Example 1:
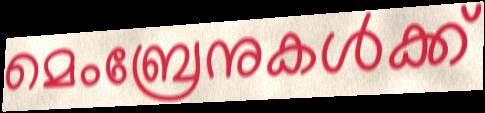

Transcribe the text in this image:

മെംബ്രേനുകൾക്ക്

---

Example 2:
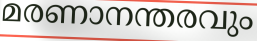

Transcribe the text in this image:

മരണാനന്തരവും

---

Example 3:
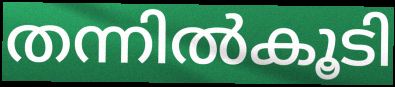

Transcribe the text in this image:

തന്നിൽകൂടി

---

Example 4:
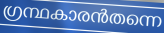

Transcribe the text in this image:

ഗ്രന്ഥകാരൻതന്നെ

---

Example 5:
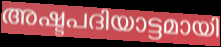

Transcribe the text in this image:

അഷ്ടപദിയാട്ടമായി